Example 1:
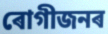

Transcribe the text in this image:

ৰোগীজনৰ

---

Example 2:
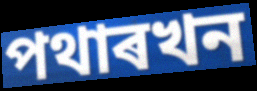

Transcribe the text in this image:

পথাৰখন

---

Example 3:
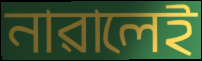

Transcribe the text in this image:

নাৱালেই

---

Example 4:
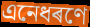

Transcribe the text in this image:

এনেধৰণে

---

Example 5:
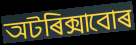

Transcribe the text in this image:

অটৰিক্সাবোৰ